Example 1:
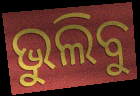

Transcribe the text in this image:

ଭୁଲିବୁ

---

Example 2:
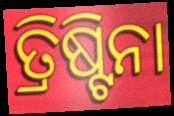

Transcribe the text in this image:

ତ୍ରିଷ୍ଟିନା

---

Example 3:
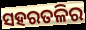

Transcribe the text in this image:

ସହରତଳିର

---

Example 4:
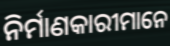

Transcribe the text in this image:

ନିର୍ମାଣକାରୀମାନେ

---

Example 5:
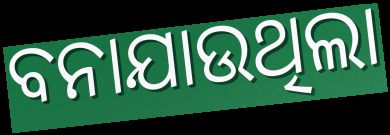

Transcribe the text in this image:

ବନାଯାଉଥିଲା